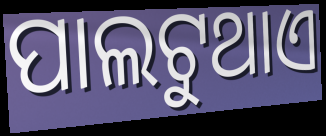
ପାଲଟୁଥାଏ